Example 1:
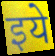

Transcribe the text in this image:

इये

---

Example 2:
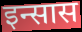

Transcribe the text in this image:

इन्सास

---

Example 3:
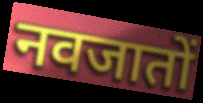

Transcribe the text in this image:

नवजातों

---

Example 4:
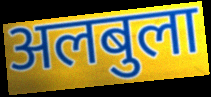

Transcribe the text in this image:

अलबुला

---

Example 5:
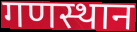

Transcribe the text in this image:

गणस्थान